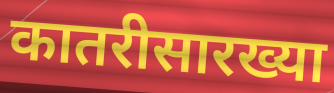
कातरीसारख्या